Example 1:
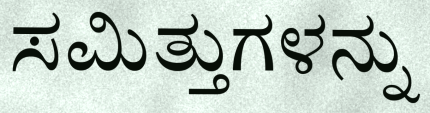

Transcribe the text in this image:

ಸಮಿತ್ತುಗಳನ್ನು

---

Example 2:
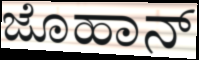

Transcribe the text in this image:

ಜೊಹಾನ್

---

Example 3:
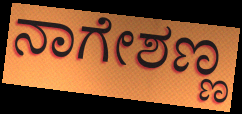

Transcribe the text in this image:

ನಾಗೇಶಣ್ಣ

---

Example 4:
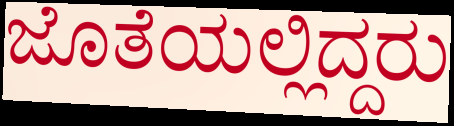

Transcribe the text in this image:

ಜೊತೆಯಲ್ಲಿದ್ದರು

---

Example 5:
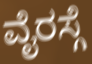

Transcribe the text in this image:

ವೈರಸ್ಗೆ